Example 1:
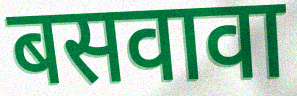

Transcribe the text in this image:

बसवावा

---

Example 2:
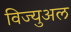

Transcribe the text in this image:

विज्युअल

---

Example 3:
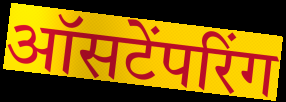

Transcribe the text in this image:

ऑसटेंपरिंग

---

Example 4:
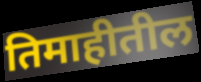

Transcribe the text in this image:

तिमाहीतील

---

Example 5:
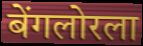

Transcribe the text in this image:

बेंगलोरला